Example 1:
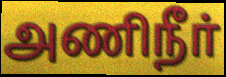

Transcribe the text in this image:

அணிநீர்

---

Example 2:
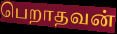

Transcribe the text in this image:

பெறாதவன்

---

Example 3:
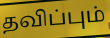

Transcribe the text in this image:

தவிப்பும்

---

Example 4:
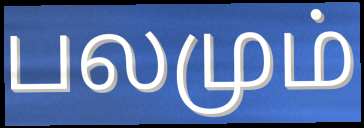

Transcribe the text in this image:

பலமும்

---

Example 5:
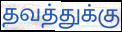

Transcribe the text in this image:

தவத்துக்கு